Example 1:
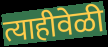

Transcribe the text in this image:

त्याहीवेळी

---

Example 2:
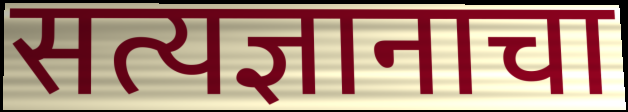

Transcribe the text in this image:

सत्यज्ञानाचा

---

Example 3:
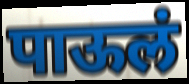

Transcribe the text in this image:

पाऊलं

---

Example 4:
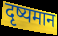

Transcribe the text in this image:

दृष्यमान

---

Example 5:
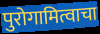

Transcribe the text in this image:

पुरोगामित्वाचा